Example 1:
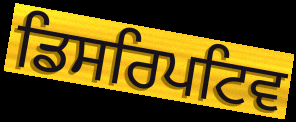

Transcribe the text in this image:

ਡਿਸਰਿਪਟਿਵ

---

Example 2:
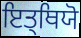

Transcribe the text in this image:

ਇਤ੍ਥਿਯੋ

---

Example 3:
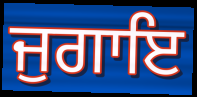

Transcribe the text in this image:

ਜੁਗਾਇ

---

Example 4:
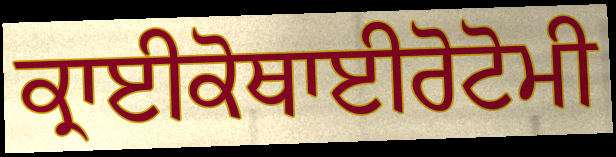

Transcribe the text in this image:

ਕ੍ਰਾਈਕੋਥਾਈਰੋਟੋਮੀ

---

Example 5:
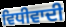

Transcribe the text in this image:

ਵਿਧੀਵਾਦੀ